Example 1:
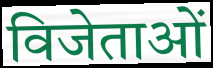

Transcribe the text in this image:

विजेताओं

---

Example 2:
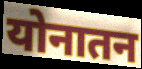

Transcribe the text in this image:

योनातन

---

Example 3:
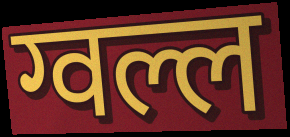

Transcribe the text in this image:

ग्वल्ल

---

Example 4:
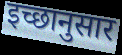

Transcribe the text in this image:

इच्छानुसार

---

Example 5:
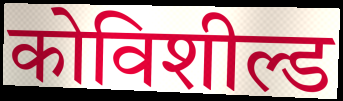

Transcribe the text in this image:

कोविशील्ड